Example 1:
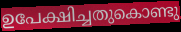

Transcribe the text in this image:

ഉപേക്ഷിച്ചതുകൊണ്ടു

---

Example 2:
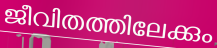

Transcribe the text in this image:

ജീവിതത്തിലേക്കും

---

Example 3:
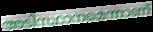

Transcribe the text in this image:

അടിസ്ഥാനമെന്നാണ്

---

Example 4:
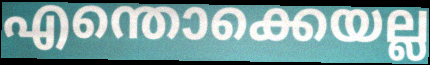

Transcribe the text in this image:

എന്തൊക്കെയല്ല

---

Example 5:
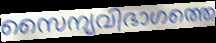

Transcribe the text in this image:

സൈന്യവിഭാഗത്തെ